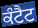
ਕੰਟੈਟ